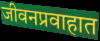
जीवनप्रवाहात